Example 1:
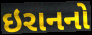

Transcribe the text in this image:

ઇરાનનો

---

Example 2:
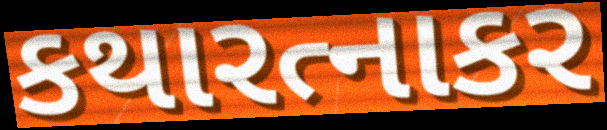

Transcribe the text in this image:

કથારત્નાકર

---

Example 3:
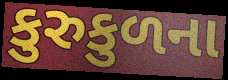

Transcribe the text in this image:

કુરુકુળના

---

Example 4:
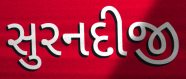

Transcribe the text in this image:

સુરનદીજી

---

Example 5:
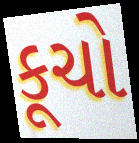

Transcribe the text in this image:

કૂચો